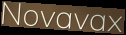
Novavax